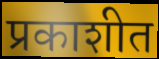
प्रकाशीत